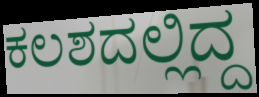
ಕಲಶದಲ್ಲಿದ್ದ